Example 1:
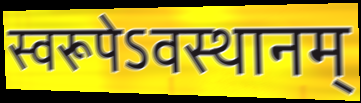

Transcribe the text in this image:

स्वरूपेऽवस्थानम्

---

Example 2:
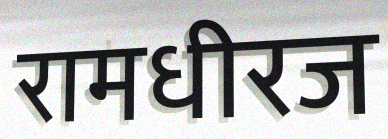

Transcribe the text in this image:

रामधीरज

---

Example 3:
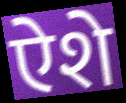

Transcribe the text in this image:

ऐशे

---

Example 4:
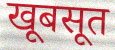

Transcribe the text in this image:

खूबसूत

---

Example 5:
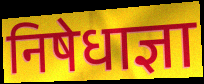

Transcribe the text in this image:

निषेधाज्ञा